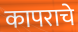
कापराचे